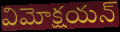
విమోక్షయన్